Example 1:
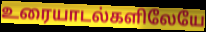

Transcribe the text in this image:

உரையாடல்களிலேயே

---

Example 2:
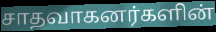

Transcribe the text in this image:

சாதவாகனர்களின்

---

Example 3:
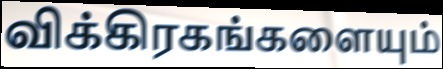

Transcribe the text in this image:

விக்கிரகங்களையும்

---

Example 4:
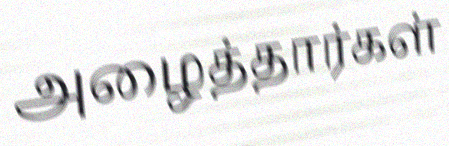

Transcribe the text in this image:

அழைத்தார்கள்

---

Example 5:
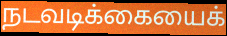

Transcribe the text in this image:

நடவடிக்கையைக்